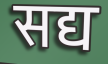
सद्य